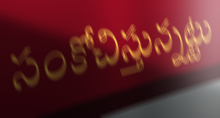
సంకోచిస్తున్నట్టు